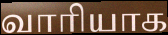
வாரியாக